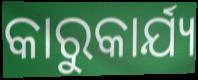
କାରୁକାର୍ଯ୍ୟ